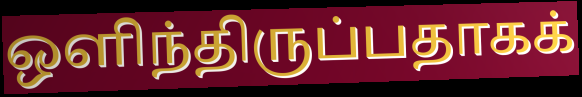
ஒளிந்திருப்பதாகக்